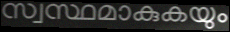
സ്വസ്ഥമാകുകയും